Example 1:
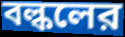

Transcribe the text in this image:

বল্কলের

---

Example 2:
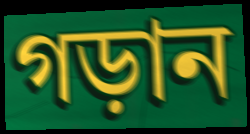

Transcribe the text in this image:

গড়ান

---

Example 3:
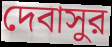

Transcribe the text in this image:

দেবাসুর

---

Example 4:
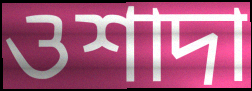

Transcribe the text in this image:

ওশাদা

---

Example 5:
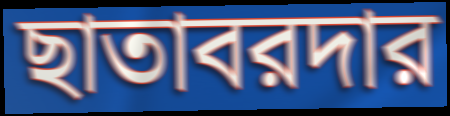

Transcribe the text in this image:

ছাতাবরদার